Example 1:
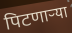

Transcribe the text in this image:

पिटणाऱ्या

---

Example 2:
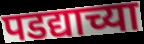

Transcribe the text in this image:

पडद्याच्या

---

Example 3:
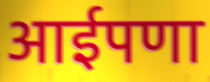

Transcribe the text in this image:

आईपणा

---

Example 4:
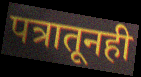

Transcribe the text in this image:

पत्रातूनही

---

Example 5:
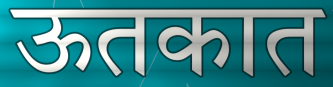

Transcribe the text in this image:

ऊतकात